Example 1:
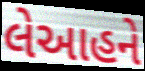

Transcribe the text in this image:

લેઆહને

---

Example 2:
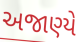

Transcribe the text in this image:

અજાણ્યે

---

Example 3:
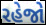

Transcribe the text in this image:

રહેજો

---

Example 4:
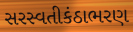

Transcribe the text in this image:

સરસ્વતીકંઠાભરણ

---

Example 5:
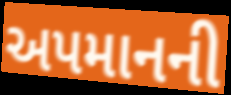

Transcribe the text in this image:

અપમાનની